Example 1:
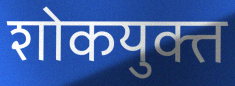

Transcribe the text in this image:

शोकयुक्त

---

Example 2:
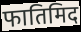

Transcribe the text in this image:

फातिमिद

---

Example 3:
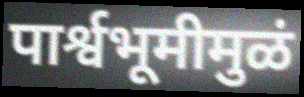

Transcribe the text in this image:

पार्श्वभूमीमुळं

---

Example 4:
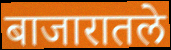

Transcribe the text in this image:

बाजारातले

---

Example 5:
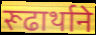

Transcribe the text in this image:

रूढार्थाने